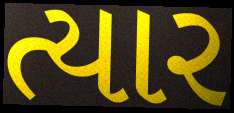
ત્યાર